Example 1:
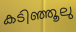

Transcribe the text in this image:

കടിഞ്ഞൂലു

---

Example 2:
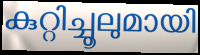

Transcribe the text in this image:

കുറ്റിച്ചൂലുമായി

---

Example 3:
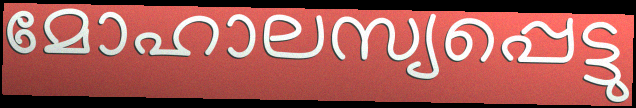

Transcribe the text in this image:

മോഹാലസ്യപ്പെട്ടു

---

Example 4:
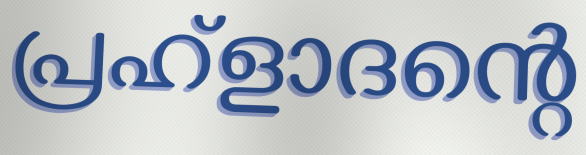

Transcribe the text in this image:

പ്രഹ്ളാദന്റെ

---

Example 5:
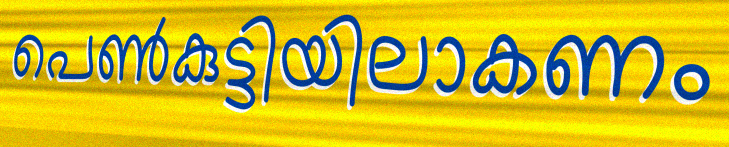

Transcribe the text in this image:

പെൺകുട്ടിയിലാകണം